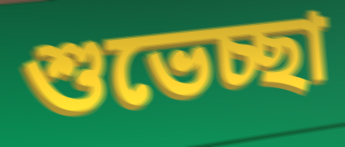
শুভেচ্ছা